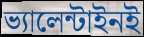
ভ্যালেন্টাইনই